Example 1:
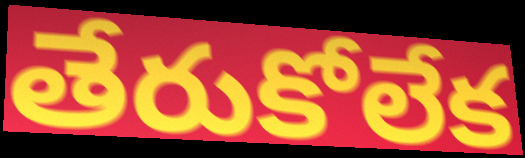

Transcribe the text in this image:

తేరుకోలేక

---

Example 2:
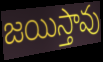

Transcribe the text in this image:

జయిస్తావు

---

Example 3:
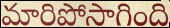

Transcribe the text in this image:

మారిపోసాగింది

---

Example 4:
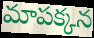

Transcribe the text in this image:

మాపక్కన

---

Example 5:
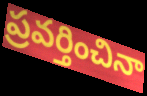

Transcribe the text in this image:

ప్రవర్తించినా